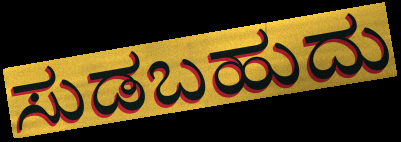
ಸುಡಬಹುದು